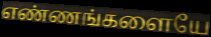
எண்ணங்களையே